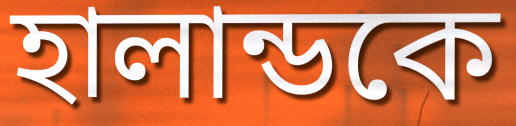
হালান্ডকে